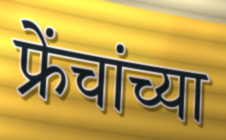
फ्रेंचांच्या